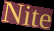
Nite